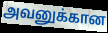
அவனுக்கான